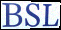
BSL